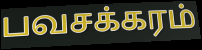
பவசக்கரம்